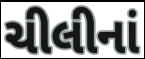
ચીલીનાં